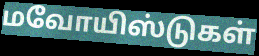
மவோயிஸ்டுகள்